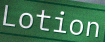
Lotion